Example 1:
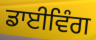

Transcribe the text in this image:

ਡਾਈਵਿੰਗ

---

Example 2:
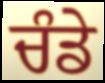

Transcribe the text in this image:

ਚੰਡੇ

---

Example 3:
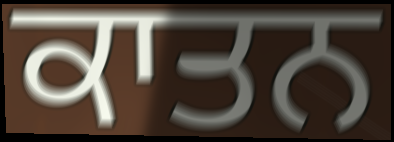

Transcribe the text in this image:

ਕਾਤਨ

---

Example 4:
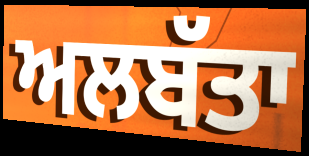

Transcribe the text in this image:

ਅਲਬੱਤਾ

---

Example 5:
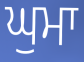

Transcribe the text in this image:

ਘੁਮਾ